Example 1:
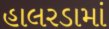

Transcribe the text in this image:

હાલરડામાં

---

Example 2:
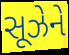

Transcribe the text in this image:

સૂઝેને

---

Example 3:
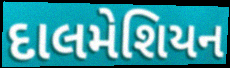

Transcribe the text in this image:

દાલમેશિયન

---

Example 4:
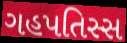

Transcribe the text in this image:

ગહપતિસ્સ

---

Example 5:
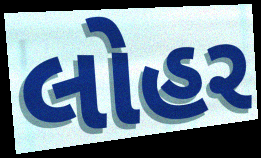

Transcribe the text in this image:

લોહર